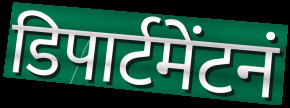
डिपार्टमेंटनं